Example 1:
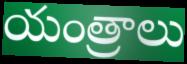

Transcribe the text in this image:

యంత్రాలు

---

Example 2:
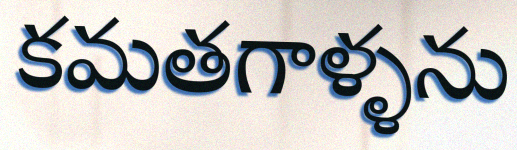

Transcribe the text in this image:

కమతగాళ్ళను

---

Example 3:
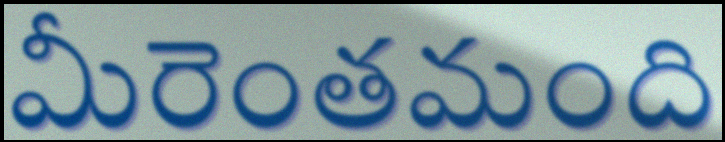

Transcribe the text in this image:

మీరెంతమంది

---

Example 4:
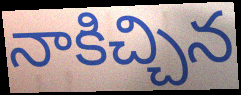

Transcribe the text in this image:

నాకిచ్చిన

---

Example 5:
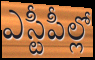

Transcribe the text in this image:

ఎస్టీపీల్లో